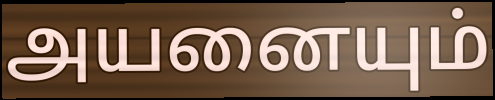
அயனையும்